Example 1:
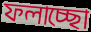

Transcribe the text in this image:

ফলাচ্ছো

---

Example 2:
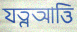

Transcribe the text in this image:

যত্নআত্তি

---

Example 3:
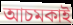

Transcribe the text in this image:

আচমকাই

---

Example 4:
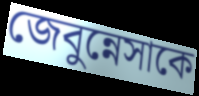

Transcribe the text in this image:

জেবুন্নেসাকে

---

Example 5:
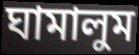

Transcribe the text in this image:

ঘামালুম